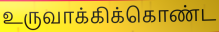
உருவாக்கிக்கொண்ட